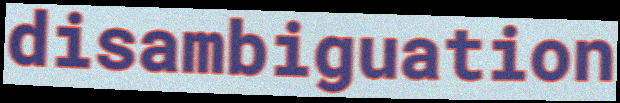
disambiguation